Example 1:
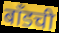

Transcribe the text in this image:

बाँडची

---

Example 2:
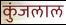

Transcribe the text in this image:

कुंजलाल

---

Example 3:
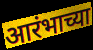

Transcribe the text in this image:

आरंभाच्या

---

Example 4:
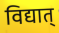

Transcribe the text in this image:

विद्यात्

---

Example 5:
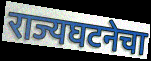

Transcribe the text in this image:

राज्यघटनेचा